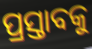
ପ୍ରସ୍ତାବକୁ